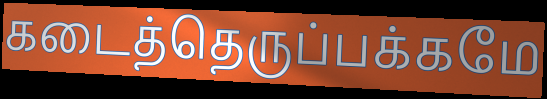
கடைத்தெருப்பக்கமே